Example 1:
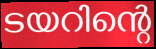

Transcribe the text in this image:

ടയറിന്റെ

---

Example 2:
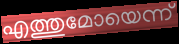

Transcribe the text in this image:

എത്തുമോയെന്ന്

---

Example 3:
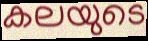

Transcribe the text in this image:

കലയുടെ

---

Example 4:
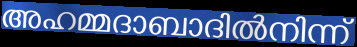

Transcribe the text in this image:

അഹമ്മദാബാദിൽനിന്ന്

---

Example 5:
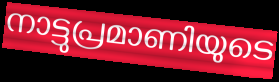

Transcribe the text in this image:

നാട്ടുപ്രമാണിയുടെ